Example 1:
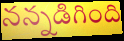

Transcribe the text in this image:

నన్నడిగింది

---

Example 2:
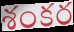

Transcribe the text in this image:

శంకర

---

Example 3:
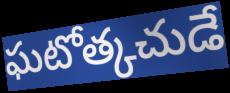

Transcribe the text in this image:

ఘటోత్కచుడే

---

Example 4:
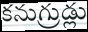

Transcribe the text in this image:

కనుగ్రుడ్లు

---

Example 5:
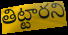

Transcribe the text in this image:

తిట్టారని